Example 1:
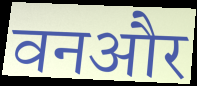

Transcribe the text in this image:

वनऔर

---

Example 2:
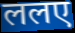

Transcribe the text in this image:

ललए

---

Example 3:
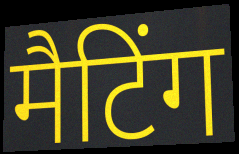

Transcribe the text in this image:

मैटिंग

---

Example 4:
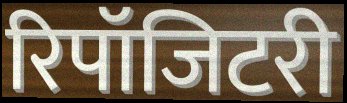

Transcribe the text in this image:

रिपॉजिटरी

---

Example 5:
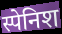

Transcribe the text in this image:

स्पेनिश